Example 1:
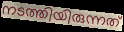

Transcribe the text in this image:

നടത്തിയിരുന്നത്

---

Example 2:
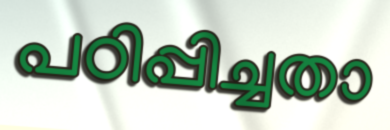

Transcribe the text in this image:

പഠിപ്പിച്ചതാ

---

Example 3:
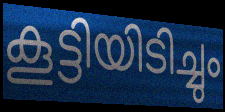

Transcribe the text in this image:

കൂട്ടിയിടിച്ചും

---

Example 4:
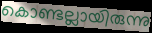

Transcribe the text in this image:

കൊണ്ടല്ലായിരുന്നു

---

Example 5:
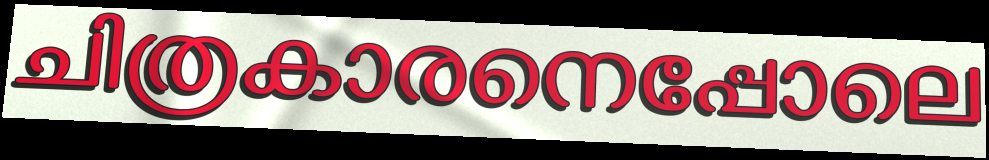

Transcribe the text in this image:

ചിത്രകാരനെപ്പോലെ